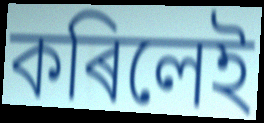
কৰিলেই